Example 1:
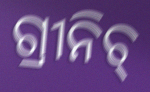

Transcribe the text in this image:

ଗ୍ରୀନିଚ୍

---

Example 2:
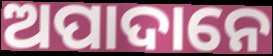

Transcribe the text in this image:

ଅପାଦାନେ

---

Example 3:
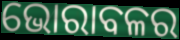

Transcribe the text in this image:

ଭୋରାବଳର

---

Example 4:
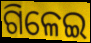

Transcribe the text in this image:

ଗିଳେଇ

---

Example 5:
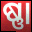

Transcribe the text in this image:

ଷ୍ଣା